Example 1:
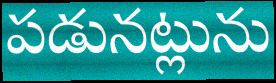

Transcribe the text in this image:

పడునట్లును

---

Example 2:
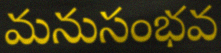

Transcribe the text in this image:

మనుసంభవ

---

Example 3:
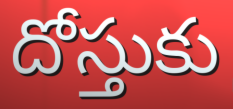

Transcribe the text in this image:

దోస్తుకు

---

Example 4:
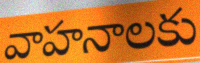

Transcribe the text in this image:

వాహనాలకు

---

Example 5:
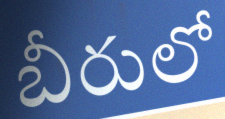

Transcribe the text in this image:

బీరులో